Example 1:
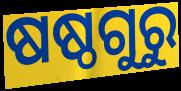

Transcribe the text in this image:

ଷଷ୍ଠଗୁରୁ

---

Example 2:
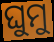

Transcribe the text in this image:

ଘୁମୁ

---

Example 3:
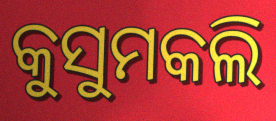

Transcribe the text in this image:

କୁସୁମକଲି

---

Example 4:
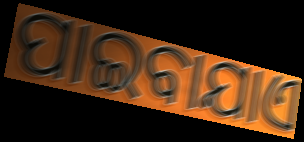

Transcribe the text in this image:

ପାଇବାଯାଏ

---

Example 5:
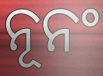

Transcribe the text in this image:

ନୂନଂ